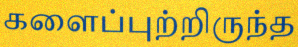
களைப்புற்றிருந்த